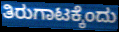
ತಿರುಗಾಟಕ್ಕೆಂದು